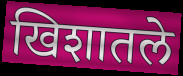
खिशातले